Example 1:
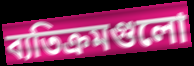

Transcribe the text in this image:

ব্যতিক্রমগুলো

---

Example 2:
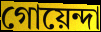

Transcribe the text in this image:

গোয়েন্দা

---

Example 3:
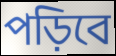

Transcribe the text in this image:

পড়িবে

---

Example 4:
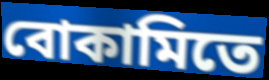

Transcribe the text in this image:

বোকামিতে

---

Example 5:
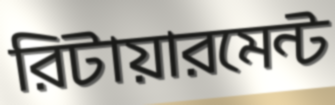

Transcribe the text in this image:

রিটায়ারমেন্ট